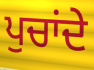
ਪੁਚਾਂਦੇ